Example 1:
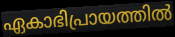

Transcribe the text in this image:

ഏകാഭിപ്രായത്തിൽ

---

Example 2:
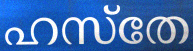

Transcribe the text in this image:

ഹസ്തേ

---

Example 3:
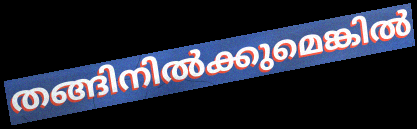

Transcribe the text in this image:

തങ്ങിനിൽക്കുമെങ്കിൽ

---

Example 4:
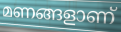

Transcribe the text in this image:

മണങ്ങളാണ്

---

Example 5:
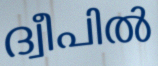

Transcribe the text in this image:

ദ്വീപിൽ